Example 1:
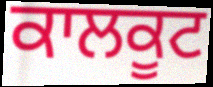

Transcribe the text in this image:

ਕਾਲਕੂਟ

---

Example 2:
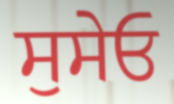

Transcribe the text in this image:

ਸੁਸੇਓ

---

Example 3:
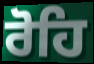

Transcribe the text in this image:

ਰੋਹਿ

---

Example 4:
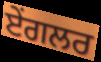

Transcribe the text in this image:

ਏਂਗਲਰ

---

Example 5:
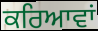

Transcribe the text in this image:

ਕਰਿਆਵਾਂ